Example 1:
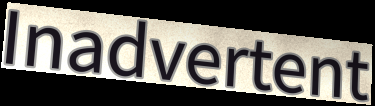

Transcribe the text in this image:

Inadvertent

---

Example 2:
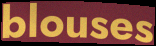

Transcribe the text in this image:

blouses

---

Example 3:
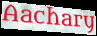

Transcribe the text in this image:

Aachary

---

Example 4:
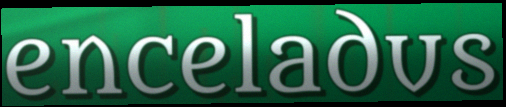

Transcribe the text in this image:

enceladus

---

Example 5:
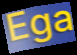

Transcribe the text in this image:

Ega